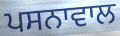
ਪਸਨਾਵਾਲ